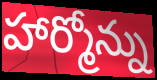
హార్మోన్ను